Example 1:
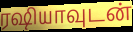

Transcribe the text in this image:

ரஷியாவுடன்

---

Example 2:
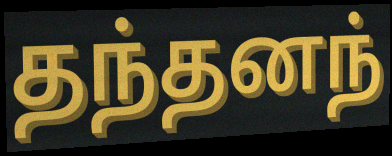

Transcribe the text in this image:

தந்தனந்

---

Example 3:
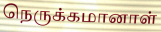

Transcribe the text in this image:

நெருக்கமானாள்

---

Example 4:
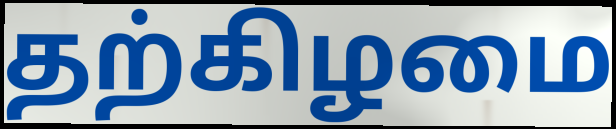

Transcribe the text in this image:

தற்கிழமை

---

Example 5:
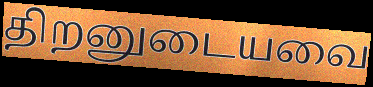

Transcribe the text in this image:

திறனுடையவை